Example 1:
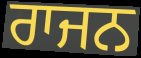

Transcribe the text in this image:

ਰਾਜਨ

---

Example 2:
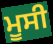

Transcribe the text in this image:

ਮੂਸੀ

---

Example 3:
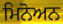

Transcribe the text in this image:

ਮਿਨੋਅਨ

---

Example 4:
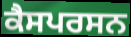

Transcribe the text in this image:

ਕੈਸਪਰਸਨ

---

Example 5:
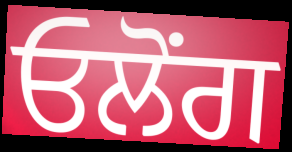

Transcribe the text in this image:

ਓਲੋਂਗ